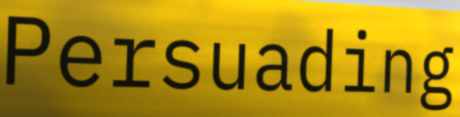
Persuading